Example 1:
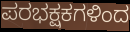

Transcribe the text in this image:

ಪರಭಕ್ಷಕಗಳಿಂದ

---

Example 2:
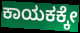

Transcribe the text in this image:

ಕಾಯಕಕ್ಕೇ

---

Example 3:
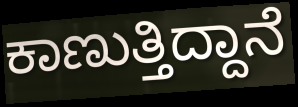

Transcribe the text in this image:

ಕಾಣುತ್ತಿದ್ದಾನೆ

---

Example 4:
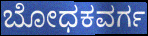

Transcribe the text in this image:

ಬೋಧಕವರ್ಗ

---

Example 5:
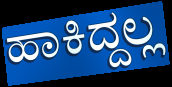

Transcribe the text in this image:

ಹಾಕಿದ್ದಲ್ಲ